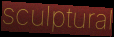
sculptural